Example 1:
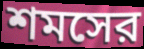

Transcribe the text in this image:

শমসের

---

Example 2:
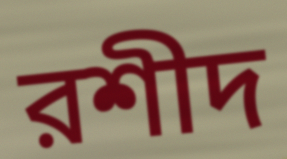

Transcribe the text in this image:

রশীদ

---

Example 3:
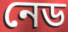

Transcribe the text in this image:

নেড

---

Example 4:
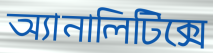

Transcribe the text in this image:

অ্যানালিটিক্সে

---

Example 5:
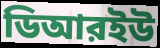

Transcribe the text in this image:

ডিআরইউ